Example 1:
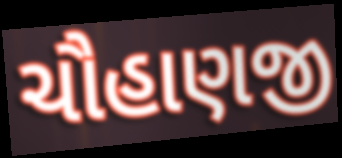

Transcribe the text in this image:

ચૌહાણજી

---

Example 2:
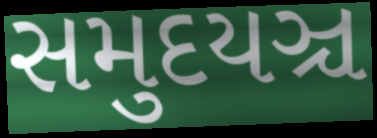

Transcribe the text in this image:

સમુદયઞ્ચ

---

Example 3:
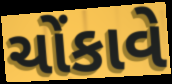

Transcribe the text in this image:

ચોંકાવે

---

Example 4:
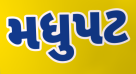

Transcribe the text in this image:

મધુપટ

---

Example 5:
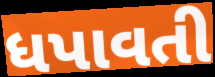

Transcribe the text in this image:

ધપાવતી